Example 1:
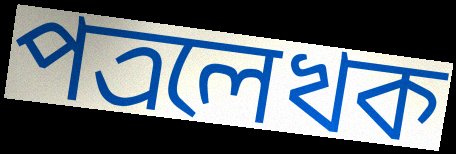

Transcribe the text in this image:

পত্রলেখক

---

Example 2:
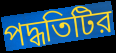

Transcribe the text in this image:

পদ্ধতিটির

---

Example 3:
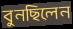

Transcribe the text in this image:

বুনছিলেন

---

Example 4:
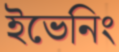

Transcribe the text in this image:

ইভেনিং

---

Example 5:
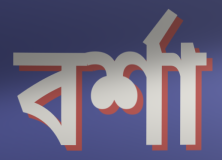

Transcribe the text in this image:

বর্শা